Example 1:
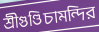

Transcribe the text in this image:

শ্রীগুণ্ডিচামন্দির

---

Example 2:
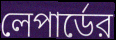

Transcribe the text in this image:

লেপার্ডের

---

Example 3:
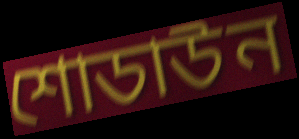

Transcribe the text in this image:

শোডাউন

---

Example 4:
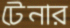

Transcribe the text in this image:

টেনার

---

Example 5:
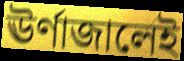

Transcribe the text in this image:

ঊর্ণাজালেই